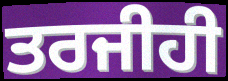
ਤਰਜੀਹੀ